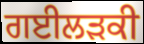
ਗਈਲੜਕੀ